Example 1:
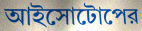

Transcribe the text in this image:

আইসোটোপের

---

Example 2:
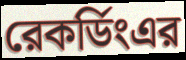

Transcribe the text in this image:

রেকর্ডিংএর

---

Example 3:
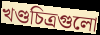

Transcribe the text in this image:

খণ্ডচিত্রগুলো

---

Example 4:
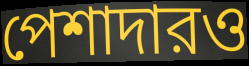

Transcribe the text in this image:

পেশাদারও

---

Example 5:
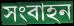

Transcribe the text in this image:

সংবাহন